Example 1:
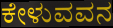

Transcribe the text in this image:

ಕೇಳುವವನ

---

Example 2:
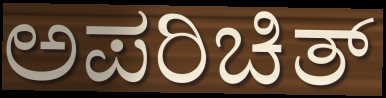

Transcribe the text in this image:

ಅಪರಿಚಿತ್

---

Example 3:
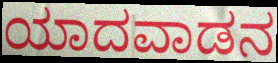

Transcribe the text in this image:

ಯಾದವಾಡನ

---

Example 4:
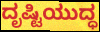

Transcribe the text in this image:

ದೃಷ್ಟಿಯುದ್ಧ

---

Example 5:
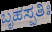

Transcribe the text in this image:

ಬೃಹಸ್ಪತಿಃ